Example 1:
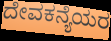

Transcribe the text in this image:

ದೇವಕನ್ಯೆಯರ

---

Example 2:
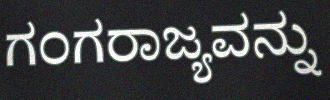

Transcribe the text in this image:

ಗಂಗರಾಜ್ಯವನ್ನು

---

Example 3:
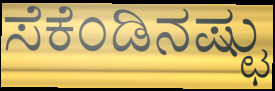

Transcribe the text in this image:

ಸೆಕೆಂಡಿನಷ್ಟು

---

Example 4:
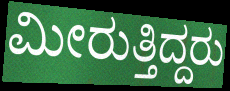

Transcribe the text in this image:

ಮೀರುತ್ತಿದ್ದರು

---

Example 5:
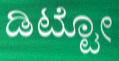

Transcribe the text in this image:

ಡಿಟ್ಟೋ